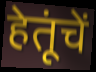
हेतूंचें